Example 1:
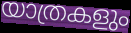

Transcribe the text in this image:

യാത്രകളും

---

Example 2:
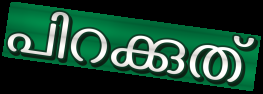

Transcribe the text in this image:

പിറക്കുത്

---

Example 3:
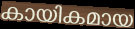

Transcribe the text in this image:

കായികമായ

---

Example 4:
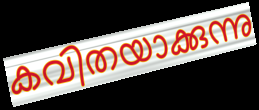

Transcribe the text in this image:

കവിതയാക്കുന്നു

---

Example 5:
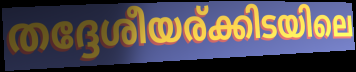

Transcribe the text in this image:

തദ്ദേശീയര്ക്കിടയിലെ